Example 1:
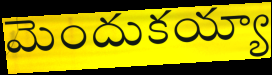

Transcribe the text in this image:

మెందుకయ్యా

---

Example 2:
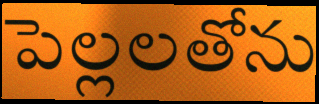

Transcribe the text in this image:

పెల్లలతోను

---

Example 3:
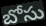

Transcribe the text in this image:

బోసు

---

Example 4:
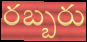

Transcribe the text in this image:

రబ్బరు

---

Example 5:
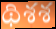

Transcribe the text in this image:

థిశశ